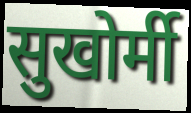
सुखोर्मी